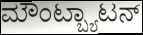
ಮೌಂಟ್ಬ್ಯಾಟನ್